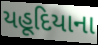
યહૂદિયાના